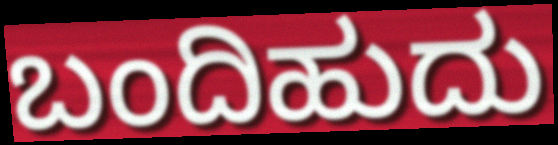
ಬಂದಿಹುದು